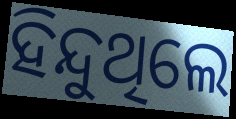
ହିନ୍ଦୁଥିଲେ